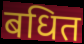
बधित